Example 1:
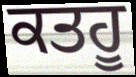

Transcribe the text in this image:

ਕਤਹੂ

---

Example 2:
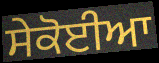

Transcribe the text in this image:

ਸੇਕੋਈਆ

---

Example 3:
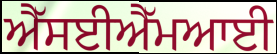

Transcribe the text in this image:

ਐੱਸਈਐੱਮਆਈ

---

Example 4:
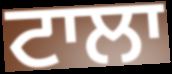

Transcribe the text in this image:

ਟਾਲਾ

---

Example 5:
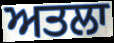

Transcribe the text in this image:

ਅਤਲਾ